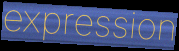
expression